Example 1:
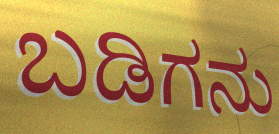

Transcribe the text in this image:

ಬಡಿಗನು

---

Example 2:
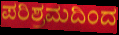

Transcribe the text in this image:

ಪರಿಶ್ರಮದಿಂದ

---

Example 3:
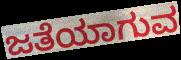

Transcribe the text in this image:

ಜತೆಯಾಗುವ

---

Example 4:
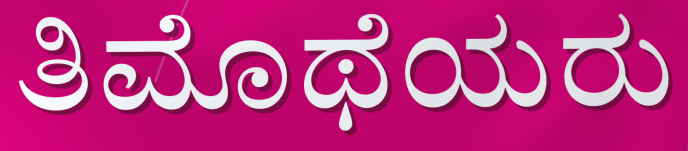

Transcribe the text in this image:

ತಿಮೊಥೆಯರು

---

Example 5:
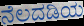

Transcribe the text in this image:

ನೆಲದಡಿಯ